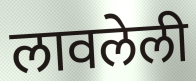
लावलेली